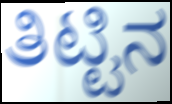
ತಿಟ್ಟಿನ